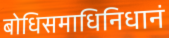
बोधिसमाधिनिधानं